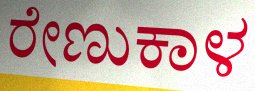
ರೇಣುಕಾಳ